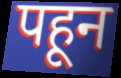
पहून